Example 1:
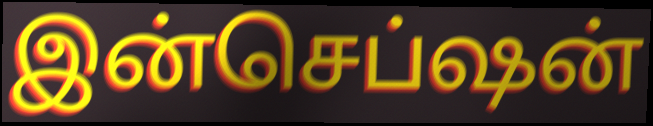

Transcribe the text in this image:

இன்செப்ஷன்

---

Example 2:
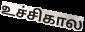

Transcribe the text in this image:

உச்சிகால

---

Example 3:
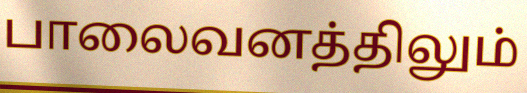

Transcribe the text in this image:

பாலைவனத்திலும்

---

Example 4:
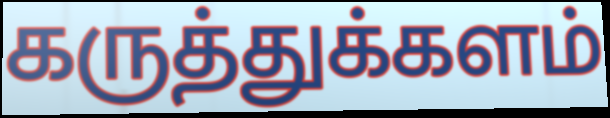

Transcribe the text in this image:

கருத்துக்களம்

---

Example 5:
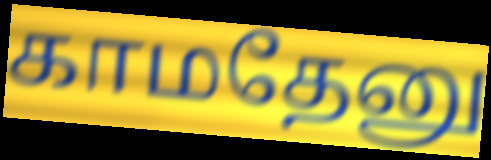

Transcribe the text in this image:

காமதேனு